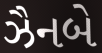
ઝૈનબે